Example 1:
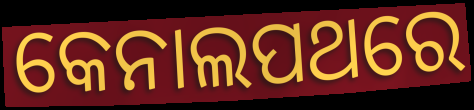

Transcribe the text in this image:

କେନାଲପଥରେ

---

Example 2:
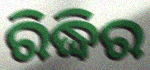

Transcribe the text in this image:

ରିଦ୍ଧିର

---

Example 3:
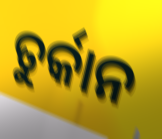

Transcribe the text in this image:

ତୁର୍କାନ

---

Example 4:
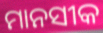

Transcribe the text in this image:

ମାନସୀକ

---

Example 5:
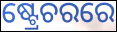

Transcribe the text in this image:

ଷ୍ଟ୍ରେଚରରେ